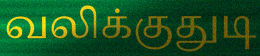
வலிக்குதுடி